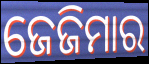
ଜେଜିମାର